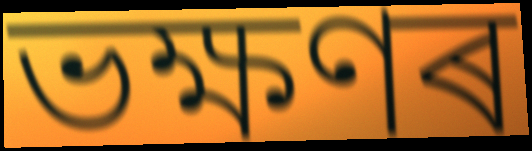
ভক্ষণৰ